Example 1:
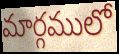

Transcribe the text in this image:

మార్గములో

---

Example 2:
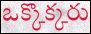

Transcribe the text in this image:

ఒక్కొక్కరు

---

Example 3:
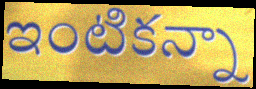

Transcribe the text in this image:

ఇంటికన్నా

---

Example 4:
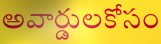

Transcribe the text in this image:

అవార్డులకోసం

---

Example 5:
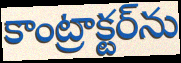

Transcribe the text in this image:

కాంట్రాక్టర్‌ను